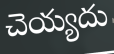
చెయ్యదు